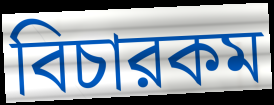
বিচারকম